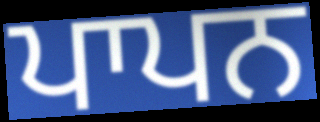
ਪਾਪਨ